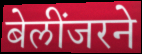
बेलींजरने